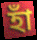
হাঁ